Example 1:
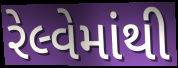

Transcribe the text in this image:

રેલ્વેમાંથી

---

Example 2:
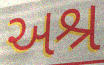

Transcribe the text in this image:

અશ્ર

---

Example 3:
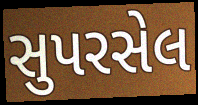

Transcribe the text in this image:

સુપરસેલ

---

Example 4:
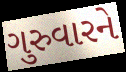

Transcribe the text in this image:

ગુરુવારને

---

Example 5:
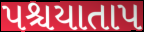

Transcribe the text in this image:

પશ્ચયાતાપ